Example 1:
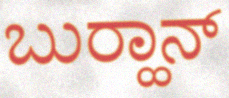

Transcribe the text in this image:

ಬುರ‍್ಹಾನ್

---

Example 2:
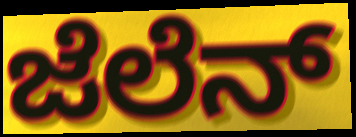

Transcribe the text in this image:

ಜೆಲೆನ್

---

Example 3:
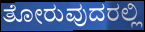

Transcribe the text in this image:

ತೋರುವುದರಲ್ಲಿ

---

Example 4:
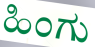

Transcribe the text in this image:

ಹಿಂಗು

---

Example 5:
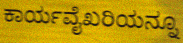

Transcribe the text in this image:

ಕಾರ್ಯವೈಖರಿಯನ್ನೂ